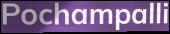
Pochampalli